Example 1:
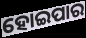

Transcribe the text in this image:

ହୋଇପାର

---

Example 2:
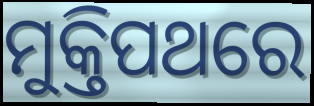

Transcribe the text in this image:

ମୁକ୍ତିପଥରେ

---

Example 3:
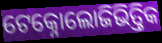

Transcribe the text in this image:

ଟେକ୍ନୋଲୋଜିଭିତ୍ତିକ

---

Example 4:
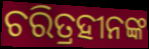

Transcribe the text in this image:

ଚରିତ୍ରହୀନଙ୍କ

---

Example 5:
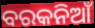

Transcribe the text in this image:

ବରକନିଆଁ